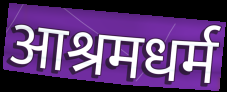
आश्रमधर्म